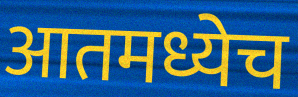
आतमध्येच